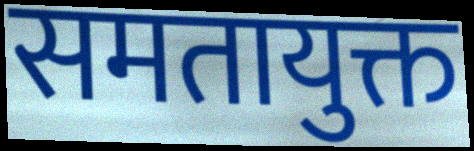
समतायुक्त